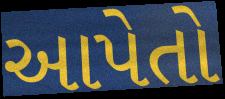
આપેતો